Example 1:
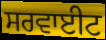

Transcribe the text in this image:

ਸਰਵਾਈਟ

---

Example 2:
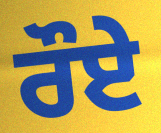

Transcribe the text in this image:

ਰੌਏ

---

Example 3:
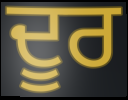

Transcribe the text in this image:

ਦੂਰ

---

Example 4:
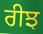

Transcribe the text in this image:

ਰੀਝ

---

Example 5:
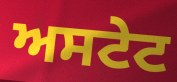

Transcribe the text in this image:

ਅਸਟੇਟ